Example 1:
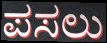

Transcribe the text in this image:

ಪಸಲು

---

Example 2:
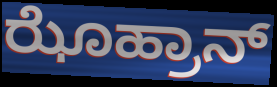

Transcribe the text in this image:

ಝೊಹ್ರಾನ್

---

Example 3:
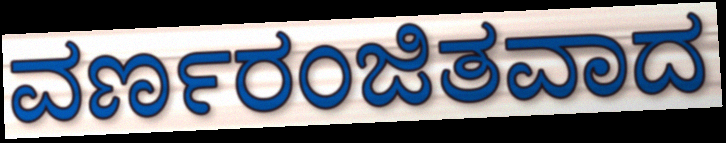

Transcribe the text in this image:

ವರ್ಣರಂಜಿತವಾದ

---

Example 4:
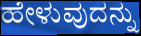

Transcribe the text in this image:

ಹೇಳುವುದನ್ನು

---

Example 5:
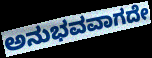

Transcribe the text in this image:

ಅನುಭವವಾಗದೇ